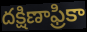
దక్షిణాఫ్రికా